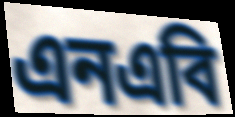
এনএবি